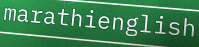
marathienglish